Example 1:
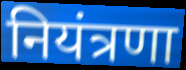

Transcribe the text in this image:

नियंत्रणा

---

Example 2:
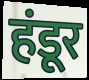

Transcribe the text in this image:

हंडूर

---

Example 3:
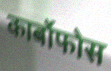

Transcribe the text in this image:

कार्बोफोस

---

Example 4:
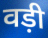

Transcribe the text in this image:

वड़ी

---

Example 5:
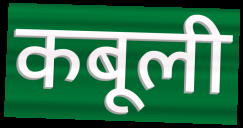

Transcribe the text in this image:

कबूली